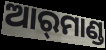
ଆର୍‌ମାଣ୍ଡ